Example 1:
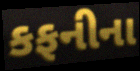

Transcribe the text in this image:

કફનીના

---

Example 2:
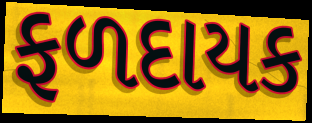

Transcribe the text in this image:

ફળદાયક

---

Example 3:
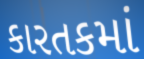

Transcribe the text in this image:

કારતકમાં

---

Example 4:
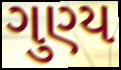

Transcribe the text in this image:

ગુણ્ય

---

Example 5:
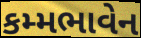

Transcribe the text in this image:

કમ્મભાવેન